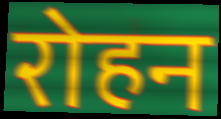
रोहन